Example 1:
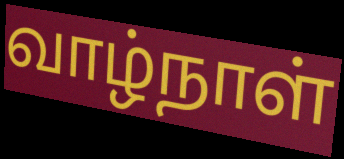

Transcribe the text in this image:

வாழ்நாள்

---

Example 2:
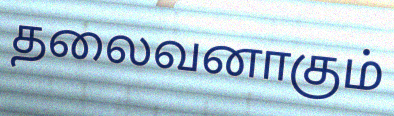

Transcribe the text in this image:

தலைவனாகும்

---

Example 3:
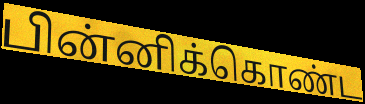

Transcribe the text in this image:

பின்னிக்கொண்ட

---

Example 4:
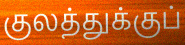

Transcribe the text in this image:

குலத்துக்குப்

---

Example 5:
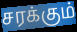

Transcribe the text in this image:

சரக்கும்